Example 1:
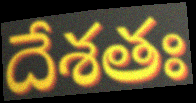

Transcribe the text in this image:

దేశతః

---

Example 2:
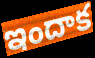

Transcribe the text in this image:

ఇందాక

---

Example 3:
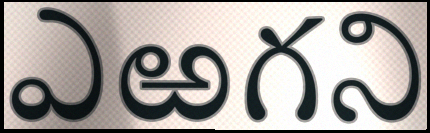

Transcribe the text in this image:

ఎఱగని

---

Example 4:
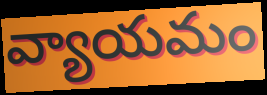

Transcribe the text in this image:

వ్యాయమం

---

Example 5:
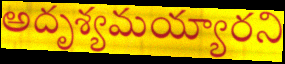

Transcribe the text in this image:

అదృశ్యమయ్యారని